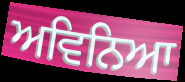
ਅਵਿਨਿਆ